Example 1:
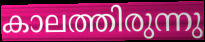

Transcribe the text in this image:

കാലത്തിരുന്നു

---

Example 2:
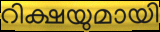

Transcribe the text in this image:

റിക്ഷയുമായി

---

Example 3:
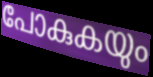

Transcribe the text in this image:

പോകുകയും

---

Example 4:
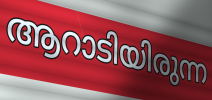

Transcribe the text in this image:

ആറാടിയിരുന്ന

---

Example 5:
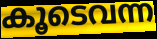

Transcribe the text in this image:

കൂടെവന്ന